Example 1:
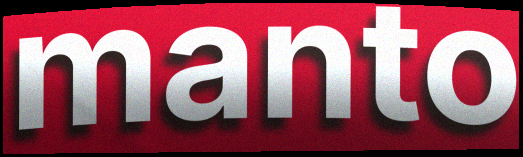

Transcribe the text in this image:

manto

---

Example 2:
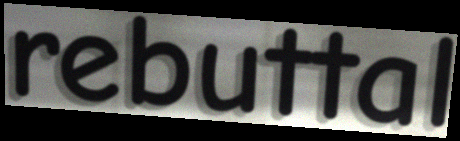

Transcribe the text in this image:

rebuttal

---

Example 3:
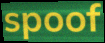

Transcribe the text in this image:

spoof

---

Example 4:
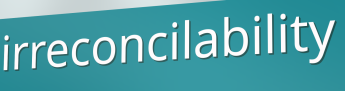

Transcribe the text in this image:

irreconcilability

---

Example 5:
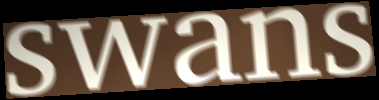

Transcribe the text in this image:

swans